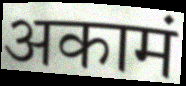
अकामं